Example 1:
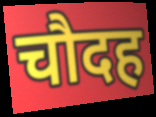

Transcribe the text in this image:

चौदह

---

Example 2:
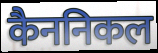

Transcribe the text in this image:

कैननिकल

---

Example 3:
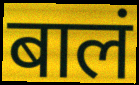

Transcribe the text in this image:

बालं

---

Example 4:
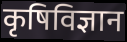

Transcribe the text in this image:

कृषिविज्ञान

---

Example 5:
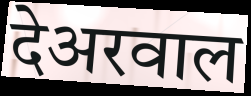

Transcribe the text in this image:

देअरवाल